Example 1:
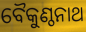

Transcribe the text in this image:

ବୈକୁଣ୍ଠନାଥ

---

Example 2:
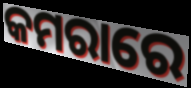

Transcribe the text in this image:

କମରାରେ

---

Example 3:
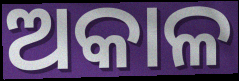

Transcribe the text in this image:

ଅକାଳ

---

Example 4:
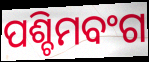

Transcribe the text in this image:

ପଶ୍ଚିମବଂଗ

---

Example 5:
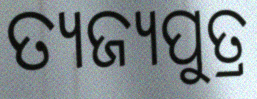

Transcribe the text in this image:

ତ୍ୟଜ୍ୟପୁତ୍ର